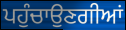
ਪਹੁੰਚਾਉਣਗੀਆਂ